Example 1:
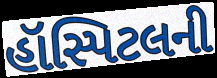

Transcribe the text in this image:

હૉસ્પિટલની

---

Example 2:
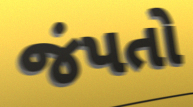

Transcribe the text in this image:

જંપતો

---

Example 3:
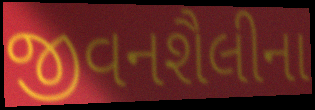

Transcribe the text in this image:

જીવનશૈલીના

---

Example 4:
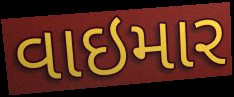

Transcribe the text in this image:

વાઇમાર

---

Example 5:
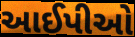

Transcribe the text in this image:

આઈપીઓ